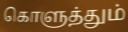
கொளுத்தும்